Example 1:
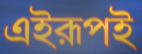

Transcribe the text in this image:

এইরূপই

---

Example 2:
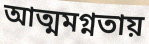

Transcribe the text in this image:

আত্মমগ্নতায়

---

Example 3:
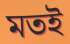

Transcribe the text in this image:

মতই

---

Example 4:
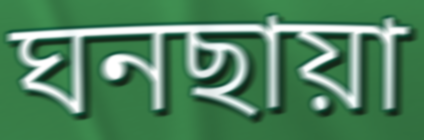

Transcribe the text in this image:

ঘনছায়া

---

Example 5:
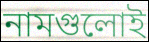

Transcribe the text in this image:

নামগুলোই